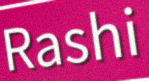
Rashi